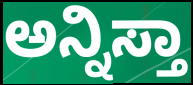
ಅನ್ನಿಸ್ತಾ